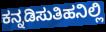
ಕನ್ನಡಿಸುತಿಹನಿಲ್ಲಿ